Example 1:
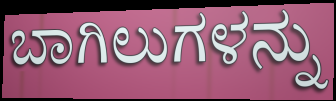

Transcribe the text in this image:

ಬಾಗಿಲುಗಳನ್ನು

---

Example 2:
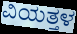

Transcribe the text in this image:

ವಿಯತ್ತಳ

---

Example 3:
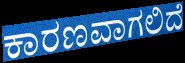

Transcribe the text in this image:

ಕಾರಣವಾಗಲಿದೆ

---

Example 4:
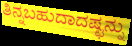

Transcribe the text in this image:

ತಿನ್ನಬಹುದಾದಷ್ಟನ್ನು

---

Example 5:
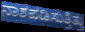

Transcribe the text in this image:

ನಾಶಪಡಿಸುತ್ತಿತ್ತು